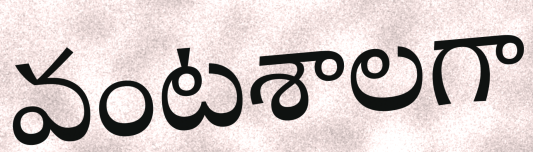
వంటశాలగా